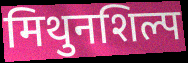
मिथुनशिल्प